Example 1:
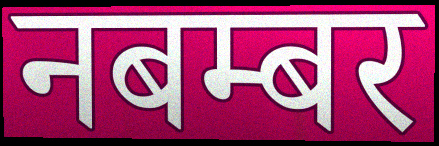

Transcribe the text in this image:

नबम्बर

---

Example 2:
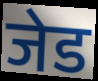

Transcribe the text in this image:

जेड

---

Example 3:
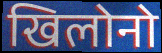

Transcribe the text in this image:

खिलोनो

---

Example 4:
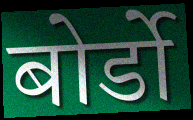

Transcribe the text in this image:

बोर्डो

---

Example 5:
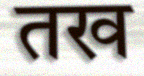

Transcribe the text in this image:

तख